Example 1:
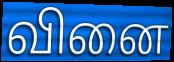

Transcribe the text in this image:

வினை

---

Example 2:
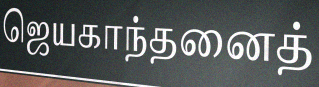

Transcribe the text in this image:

ஜெயகாந்தனைத்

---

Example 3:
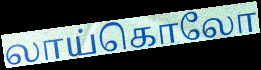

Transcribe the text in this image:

லாய்கொலோ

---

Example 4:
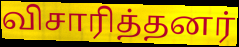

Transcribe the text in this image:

விசாரித்தனர்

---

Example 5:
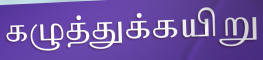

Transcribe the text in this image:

கழுத்துக்கயிறு